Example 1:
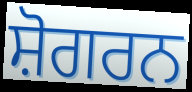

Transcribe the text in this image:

ਸ਼ੋਗਰਨ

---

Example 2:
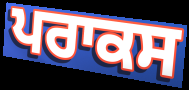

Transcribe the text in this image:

ਪਰਾਕਸ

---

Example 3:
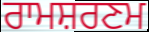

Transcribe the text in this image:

ਰਾਮਸ਼ਰਣਮ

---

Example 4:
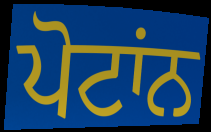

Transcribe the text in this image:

ਪੋਟਾਂਨ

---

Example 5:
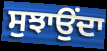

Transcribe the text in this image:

ਸੁਝਾਉਂਦਾ